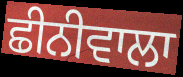
ਛੀਨੀਵਾਲਾ